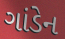
ગાંડેન